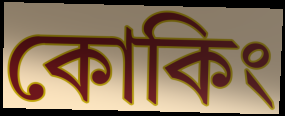
কোকিং